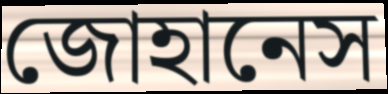
জোহানেস